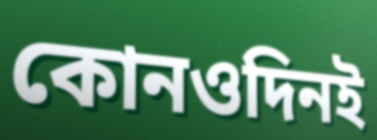
কোনওদিনই